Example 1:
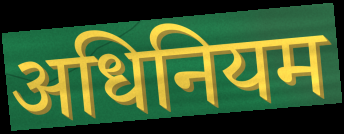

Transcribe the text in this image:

अधिनियम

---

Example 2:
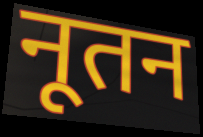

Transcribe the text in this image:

नूतन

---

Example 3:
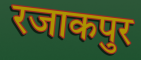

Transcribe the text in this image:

रजाकपुर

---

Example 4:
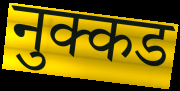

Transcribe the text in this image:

नुक्कड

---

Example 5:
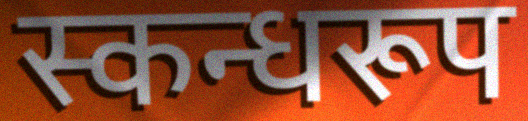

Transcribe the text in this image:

स्कन्धरूप